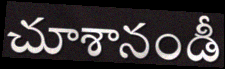
చూశానండీ